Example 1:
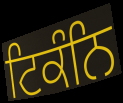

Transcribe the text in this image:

ਟਿਕੰਨਿ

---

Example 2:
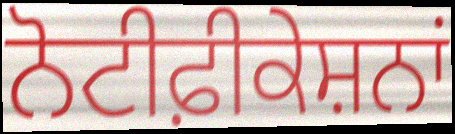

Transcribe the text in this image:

ਨੋਟੀਫ਼ੀਕੇਸ਼ਨਾਂ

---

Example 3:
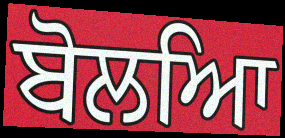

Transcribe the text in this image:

ਬੋਲਆਿ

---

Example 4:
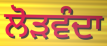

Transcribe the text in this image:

ਲੋੜਵੰਦਾ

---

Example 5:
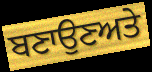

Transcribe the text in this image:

ਬਣਾਉਣਅਤੇ